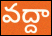
వద్దా